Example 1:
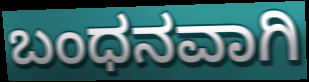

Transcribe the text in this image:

ಬಂಧನವಾಗಿ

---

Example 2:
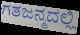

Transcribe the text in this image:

ಗತಜನ್ಮದಲ್ಲಿ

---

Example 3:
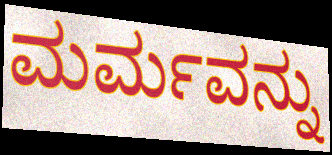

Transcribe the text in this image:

ಮರ್ಮವನ್ನು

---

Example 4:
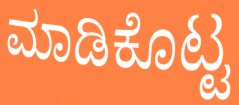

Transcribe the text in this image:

ಮಾಡಿಕೊಟ್ಟ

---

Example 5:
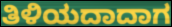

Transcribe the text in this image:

ತಿಳಿಯದಾದಾಗ